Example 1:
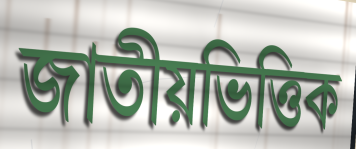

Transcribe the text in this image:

জাতীয়ভিত্তিক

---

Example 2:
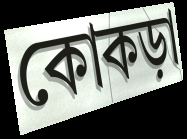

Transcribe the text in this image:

কোকড়া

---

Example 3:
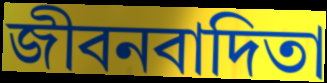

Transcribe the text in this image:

জীবনবাদিতা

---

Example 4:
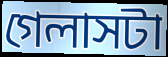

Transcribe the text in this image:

গেলাসটা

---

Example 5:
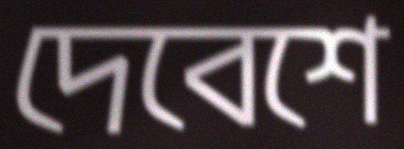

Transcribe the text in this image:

দেবেশে